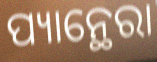
ପ୍ୟାନ୍ଥେରା